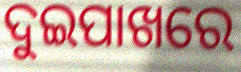
ଦୁଇପାଖରେ